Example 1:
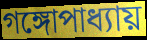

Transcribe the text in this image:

গঙ্গোপাধ্যায়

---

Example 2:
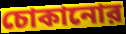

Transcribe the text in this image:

চোকানোর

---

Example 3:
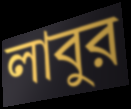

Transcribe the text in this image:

লাবুর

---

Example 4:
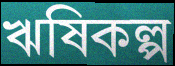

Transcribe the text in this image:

ঋষিকল্প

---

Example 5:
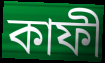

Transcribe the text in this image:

কাফী